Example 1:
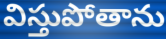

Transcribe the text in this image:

విస్తుపోతాను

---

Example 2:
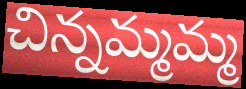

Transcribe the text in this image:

చిన్నమ్మమ్మ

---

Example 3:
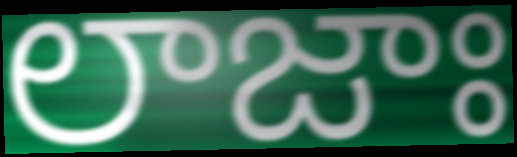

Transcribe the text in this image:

లాజాః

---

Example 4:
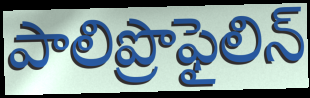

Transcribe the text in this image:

పాలిప్రొఫైలిన్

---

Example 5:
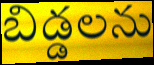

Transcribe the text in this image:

బిడ్డలను